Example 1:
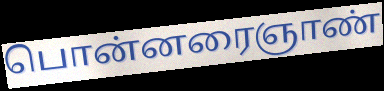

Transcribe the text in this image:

பொன்னரைஞாண்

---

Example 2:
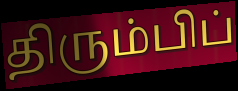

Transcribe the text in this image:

திரும்பிப்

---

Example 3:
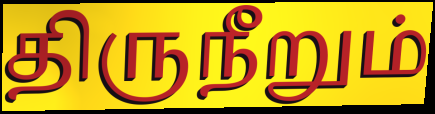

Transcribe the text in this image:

திருநீறும்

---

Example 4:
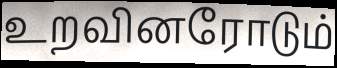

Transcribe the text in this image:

உறவினரோடும்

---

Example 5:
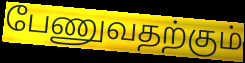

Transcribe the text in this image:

பேணுவதற்கும்